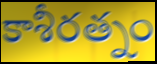
కాశీరత్నం